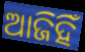
ଆଜିହିଁ